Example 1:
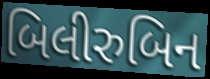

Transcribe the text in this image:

બિલીરુબિન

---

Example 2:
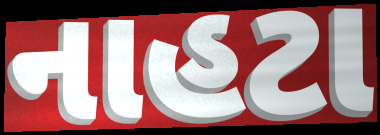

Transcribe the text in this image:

નાહટા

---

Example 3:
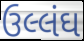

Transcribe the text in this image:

ઉલ્લંઘ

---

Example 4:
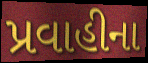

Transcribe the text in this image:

પ્રવાહીના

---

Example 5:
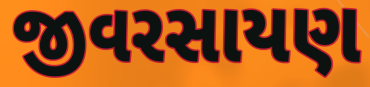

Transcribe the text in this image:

જીવરસાયણ